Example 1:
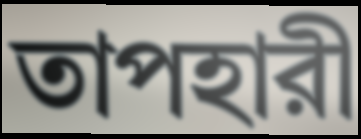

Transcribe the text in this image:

তাপহারী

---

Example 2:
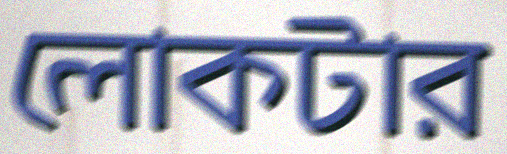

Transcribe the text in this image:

লোকটার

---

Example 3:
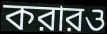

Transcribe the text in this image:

করারও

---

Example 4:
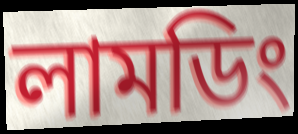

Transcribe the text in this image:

লামডিং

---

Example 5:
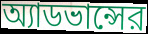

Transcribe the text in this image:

অ্যাডভান্সের